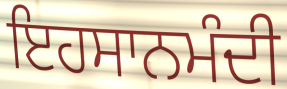
ਇਹਸਾਨਮੰਦੀ